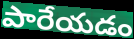
పారేయడం